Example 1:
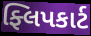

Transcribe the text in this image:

ફ્લિપકાર્ટ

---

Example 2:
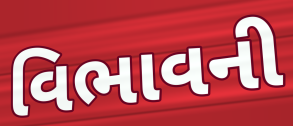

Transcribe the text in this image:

વિભાવની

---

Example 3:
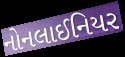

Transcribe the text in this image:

નોનલાઈનિયર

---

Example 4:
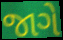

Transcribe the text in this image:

જાગે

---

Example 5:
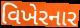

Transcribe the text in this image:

વિખેરનાર